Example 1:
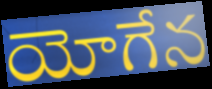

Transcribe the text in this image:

యోగేన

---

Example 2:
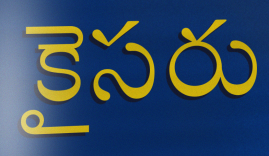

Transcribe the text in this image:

కైసరు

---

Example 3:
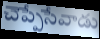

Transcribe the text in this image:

చెప్పేసేవాడు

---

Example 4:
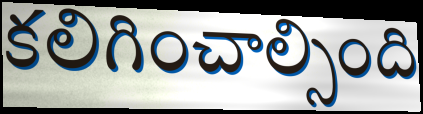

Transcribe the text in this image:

కలిగించాల్సింది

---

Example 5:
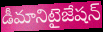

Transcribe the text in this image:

డీమానిటైజేషన్